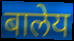
बालेय